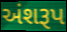
અંશરૂપ